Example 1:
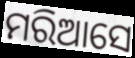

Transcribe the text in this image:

ମରିଆସେ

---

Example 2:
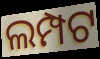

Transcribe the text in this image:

ଲମ୍ପଟ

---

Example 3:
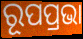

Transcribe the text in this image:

ରୂପପ୍ରଭା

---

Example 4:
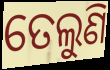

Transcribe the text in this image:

ତେଲୁଣି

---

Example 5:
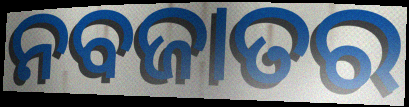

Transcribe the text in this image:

ନବଜାତର